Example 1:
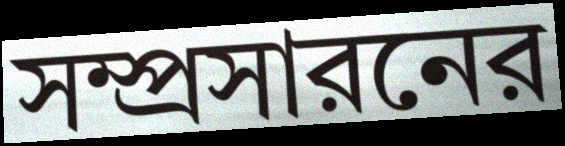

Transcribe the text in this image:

সম্প্রসারনের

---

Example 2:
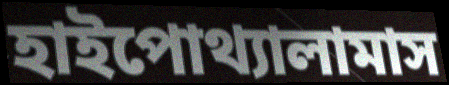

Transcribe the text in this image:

হাইপোথ্যালামাস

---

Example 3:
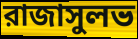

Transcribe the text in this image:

রাজাসুলভ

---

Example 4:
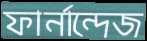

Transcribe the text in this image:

ফার্নান্দেজ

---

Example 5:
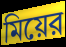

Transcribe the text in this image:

মিয়ের